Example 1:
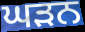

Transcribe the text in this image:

ਘੜਨ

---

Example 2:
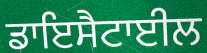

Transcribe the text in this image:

ਡਾਇਸੈਟਾਈਲ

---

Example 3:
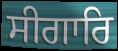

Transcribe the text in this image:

ਸੀਗਾਰਿ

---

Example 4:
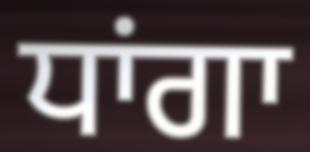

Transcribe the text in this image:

ਧਾਂਗਾ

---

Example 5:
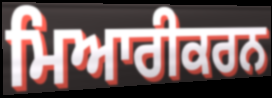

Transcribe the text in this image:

ਮਿਆਰੀਕਰਨ